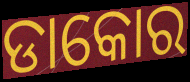
ଡାକୋର